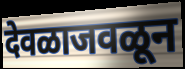
देवळाजवळून